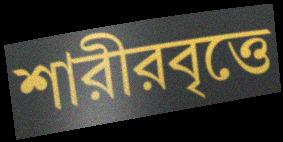
শারীরবৃত্তে